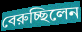
বেরুচ্ছিলেন